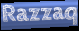
Razzaq